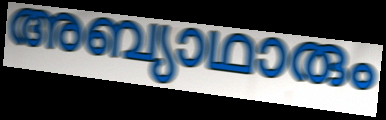
അബ്യാഥാരും